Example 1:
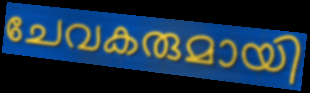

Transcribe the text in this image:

ചേവകരുമായി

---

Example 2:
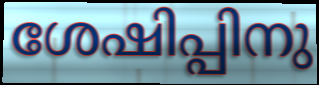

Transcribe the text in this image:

ശേഷിപ്പിനു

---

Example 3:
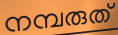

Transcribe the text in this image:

നമ്പരുത്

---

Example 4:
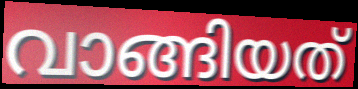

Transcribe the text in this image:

വാങ്ങിയത്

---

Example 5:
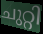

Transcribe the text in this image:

ചുറ്റി